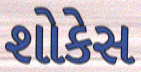
શોકેસ